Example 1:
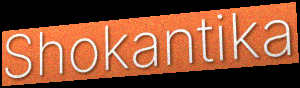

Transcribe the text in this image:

Shokantika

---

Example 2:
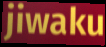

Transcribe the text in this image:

jiwaku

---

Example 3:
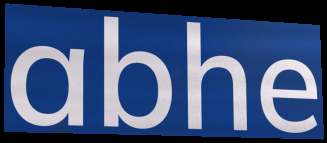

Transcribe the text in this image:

abhe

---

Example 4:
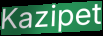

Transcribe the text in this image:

Kazipet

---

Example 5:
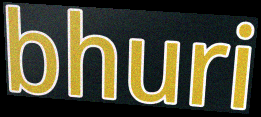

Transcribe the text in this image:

bhuri